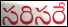
సరిసరే